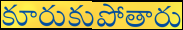
కూరుకుపోతారు